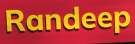
Randeep